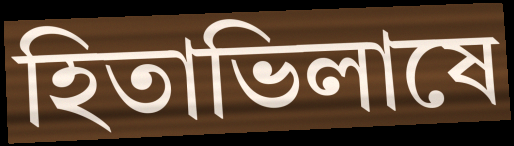
হিতাভিলাষে